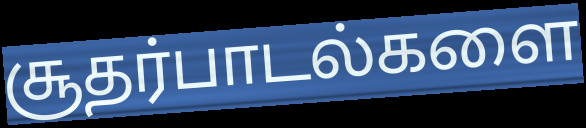
சூதர்பாடல்களை